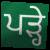
ਪੜ੍ਹੇ